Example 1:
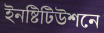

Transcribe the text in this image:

ইনষ্টিটিউশনে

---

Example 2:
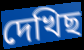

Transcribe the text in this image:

দেখিছ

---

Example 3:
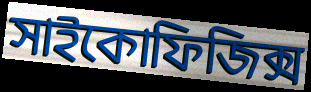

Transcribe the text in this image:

সাইকোফিজিক্স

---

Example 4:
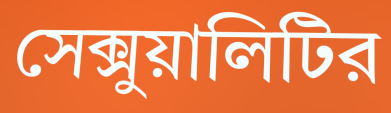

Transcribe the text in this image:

সেক্সুয়ালিটির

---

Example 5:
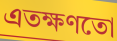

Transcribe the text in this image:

এতক্ষণতো